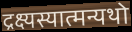
द्रक्ष्यस्यात्मन्यथो